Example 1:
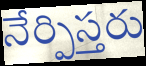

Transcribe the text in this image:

నేర్పిస్తరు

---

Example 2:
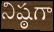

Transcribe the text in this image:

నిష్ఠగా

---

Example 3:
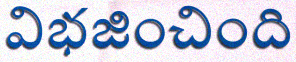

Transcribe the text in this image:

విభజించింది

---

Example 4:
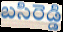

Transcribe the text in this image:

బసిరెడ్డి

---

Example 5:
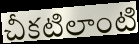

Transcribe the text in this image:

చీకటిలాంటి